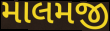
માલમજી